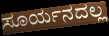
ಸೂರ್ಯನದಲ್ಲ